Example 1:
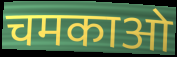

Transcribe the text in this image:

चमकाओ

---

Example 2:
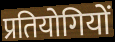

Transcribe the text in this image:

प्रतियोगियों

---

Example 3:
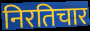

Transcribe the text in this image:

निरतिचार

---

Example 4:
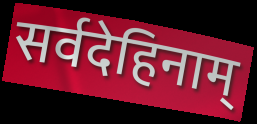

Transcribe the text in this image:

सर्वदेहिनाम्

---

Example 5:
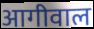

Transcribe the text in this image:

आगीवाल